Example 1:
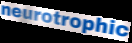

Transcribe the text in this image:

neurotrophic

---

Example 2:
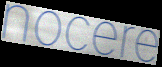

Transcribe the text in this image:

nocere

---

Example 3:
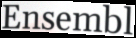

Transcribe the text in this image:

Ensembl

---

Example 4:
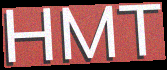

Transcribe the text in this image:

HMT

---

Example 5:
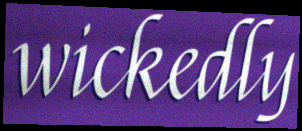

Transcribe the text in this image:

wickedly